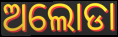
ଅଲୋଡା